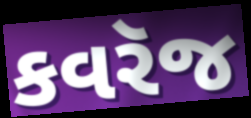
કવરૅજ